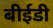
बीईडी